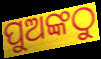
ପୁଅଙ୍କଠୁ